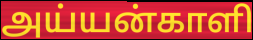
அய்யன்காளி